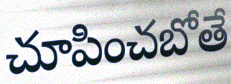
చూపించబోతే